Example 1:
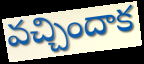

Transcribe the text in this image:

వచ్చిందాక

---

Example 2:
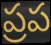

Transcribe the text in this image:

ప్రప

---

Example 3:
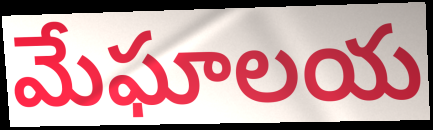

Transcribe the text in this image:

మేఘాలయ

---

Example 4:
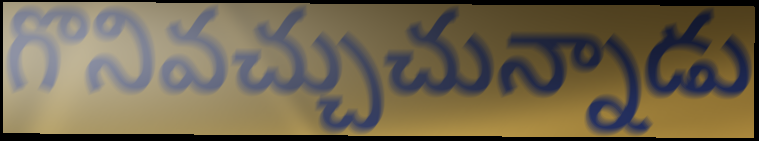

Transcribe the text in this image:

గొనివచ్చుచున్నాడు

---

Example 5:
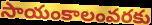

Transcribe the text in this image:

సాయంకాలంవరకు